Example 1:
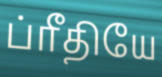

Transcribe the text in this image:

ப்ரீதியே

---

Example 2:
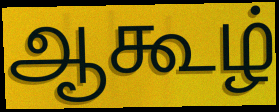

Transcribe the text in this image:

ஆகூழ்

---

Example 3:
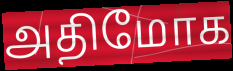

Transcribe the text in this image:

அதிமோக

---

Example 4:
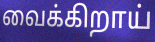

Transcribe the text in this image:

வைக்கிறாய்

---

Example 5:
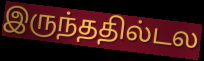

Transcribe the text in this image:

இருந்ததில்டல